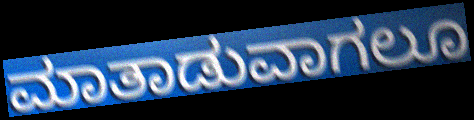
ಮಾತಾಡುವಾಗಲೂ